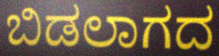
ಬಿಡಲಾಗದ